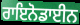
ਰਾਇਨੋਡਾਈਨ